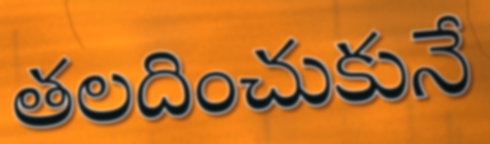
తలదించుకునే